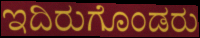
ಇದಿರುಗೊಂಡರು